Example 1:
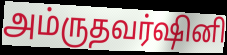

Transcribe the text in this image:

அம்ருதவர்ஷினி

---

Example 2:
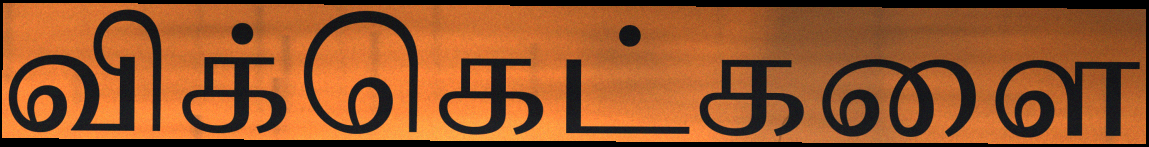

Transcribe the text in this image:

விக்கெட்களை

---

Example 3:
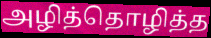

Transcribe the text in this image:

அழித்தொழித்த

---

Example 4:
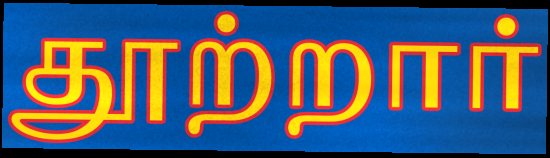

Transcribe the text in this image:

தூற்றார்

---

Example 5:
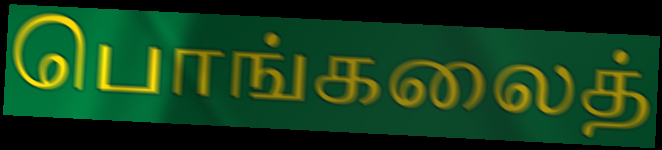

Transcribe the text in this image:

பொங்கலைத்